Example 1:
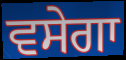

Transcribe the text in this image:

ਵਸੇਗਾ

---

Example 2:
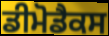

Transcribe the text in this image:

ਡੀਮੋਡੈਕਸ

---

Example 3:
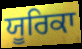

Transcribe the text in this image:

ਯੂਰਿਕਾ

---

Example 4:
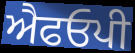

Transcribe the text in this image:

ਐਫਓਪੀ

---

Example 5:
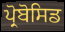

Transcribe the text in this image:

ਪ੍ਰੋਬੋਸਿਡ